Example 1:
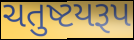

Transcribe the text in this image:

ચતુષ્ટયરૂપ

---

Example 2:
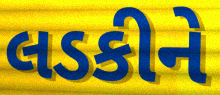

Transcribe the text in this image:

લડકીને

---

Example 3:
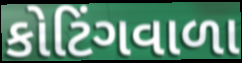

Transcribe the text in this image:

કોટિંગવાળા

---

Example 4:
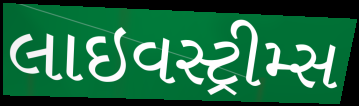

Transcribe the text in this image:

લાઇવસ્ટ્રીમ્સ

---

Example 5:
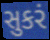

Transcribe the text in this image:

સુકરં